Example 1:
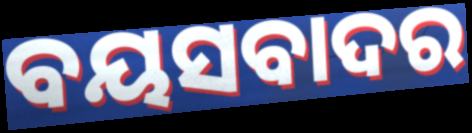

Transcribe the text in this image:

ବୟସବାଦର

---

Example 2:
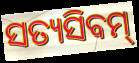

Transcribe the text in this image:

ସତ୍ୟସିବମ୍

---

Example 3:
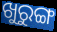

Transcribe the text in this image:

ଖୁରୁଙ୍ଗ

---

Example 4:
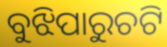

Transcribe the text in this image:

ବୁଝିପାରୁଚଟି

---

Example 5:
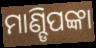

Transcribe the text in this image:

ମାଣ୍ଡିପଙ୍କା